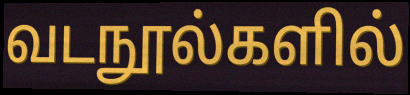
வடநூல்களில்